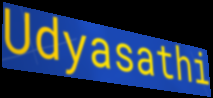
Udyasathi